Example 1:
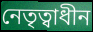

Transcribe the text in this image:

নেতৃত্বাধীন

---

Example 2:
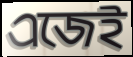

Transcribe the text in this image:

এজেই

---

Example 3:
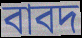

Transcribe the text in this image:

বাবদ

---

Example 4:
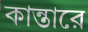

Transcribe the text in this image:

কান্তারে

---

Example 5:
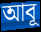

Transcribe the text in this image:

আবূ